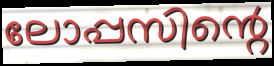
ലോപ്പസിന്റെ